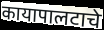
कायापालटाचे